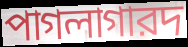
পাগলাগারদ